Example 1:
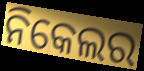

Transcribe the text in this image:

ନିକେଲର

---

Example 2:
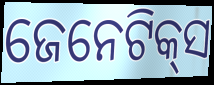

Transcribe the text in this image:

ଜେନେଟିକ୍‌ସ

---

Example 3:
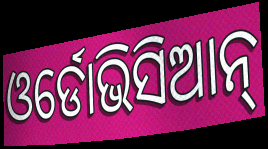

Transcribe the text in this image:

ଓର୍ଡୋଭିସିଆନ୍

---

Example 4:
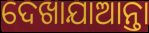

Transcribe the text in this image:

ଦେଖାଯାଆନ୍ତା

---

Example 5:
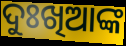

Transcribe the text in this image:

ଦୁଃଖିଆଙ୍କ